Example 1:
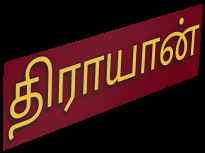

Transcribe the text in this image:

திராயான்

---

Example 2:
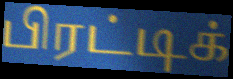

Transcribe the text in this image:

பிரட்டிக்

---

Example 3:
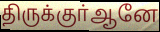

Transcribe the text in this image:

திருக்குர்ஆனே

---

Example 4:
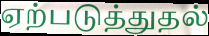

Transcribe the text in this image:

ஏற்படுத்துதல்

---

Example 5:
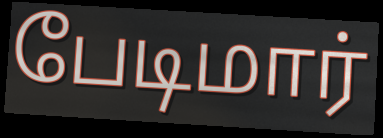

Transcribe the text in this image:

பேடிமார்